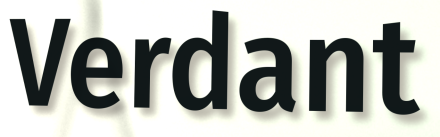
Verdant